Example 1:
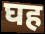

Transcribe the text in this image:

घह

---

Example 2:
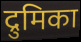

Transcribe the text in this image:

द्रुमिका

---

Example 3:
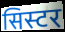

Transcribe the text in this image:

सिस्टर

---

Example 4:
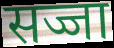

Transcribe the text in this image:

सज्जा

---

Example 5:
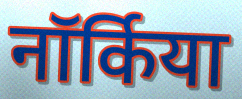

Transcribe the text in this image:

नॉर्किया